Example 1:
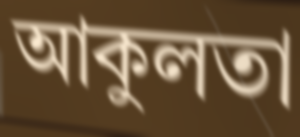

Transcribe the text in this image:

আকুলতা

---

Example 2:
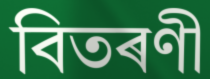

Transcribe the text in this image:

বিতৰণী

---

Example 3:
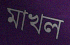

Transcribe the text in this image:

মাখল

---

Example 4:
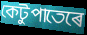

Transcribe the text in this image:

কেটুপাতেৰে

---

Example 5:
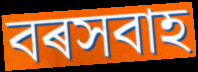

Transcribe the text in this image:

বৰসবাহ